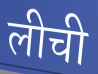
लीची